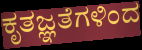
ಕೃತಜ್ಞತೆಗಳಿಂದ